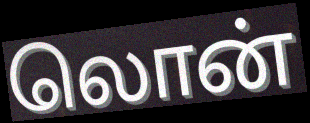
லொன்